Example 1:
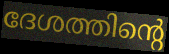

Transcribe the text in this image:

ദേശത്തിന്റെ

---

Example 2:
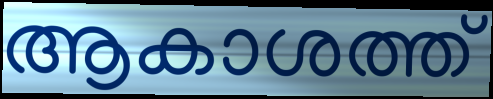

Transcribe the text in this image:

ആകാശത്ത്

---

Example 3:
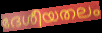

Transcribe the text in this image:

ദേശീയതലം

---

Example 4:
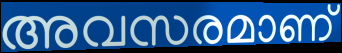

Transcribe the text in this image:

അവസരമാണ്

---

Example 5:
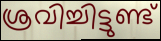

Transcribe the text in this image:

ശ്രവിച്ചിട്ടുണ്ട്